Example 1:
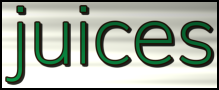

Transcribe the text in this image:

juices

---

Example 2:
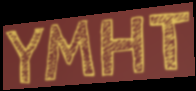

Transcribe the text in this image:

YMHT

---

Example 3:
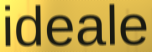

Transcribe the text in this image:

ideale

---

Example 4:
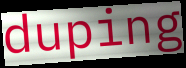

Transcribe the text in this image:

duping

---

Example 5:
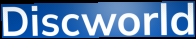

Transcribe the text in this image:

Discworld